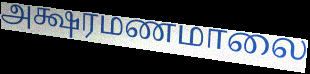
அக்ஷரமணமாலை